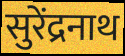
सुरेंद्रनाथ